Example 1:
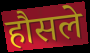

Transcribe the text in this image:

हौसले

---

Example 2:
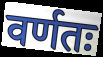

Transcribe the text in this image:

वर्णतः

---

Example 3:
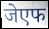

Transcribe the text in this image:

जेएफ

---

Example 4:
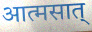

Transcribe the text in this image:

आत्मसात्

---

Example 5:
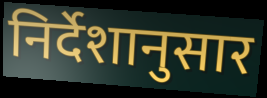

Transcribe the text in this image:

निर्देशानुसार